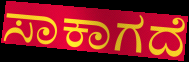
ಸಾಕಾಗದೆ